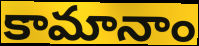
కామానాం